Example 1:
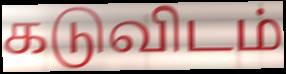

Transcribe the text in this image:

கடுவிடம்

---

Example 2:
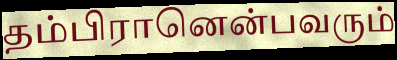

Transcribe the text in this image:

தம்பிரானென்பவரும்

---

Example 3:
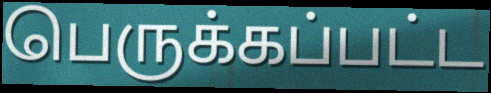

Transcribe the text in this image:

பெருக்கப்பட்ட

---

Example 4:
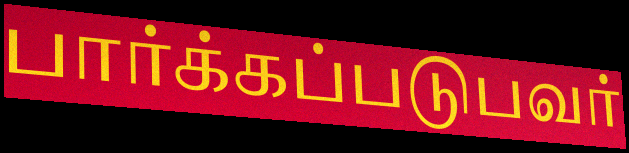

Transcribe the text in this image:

பார்க்கப்படுபவர்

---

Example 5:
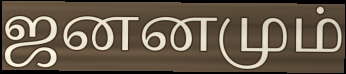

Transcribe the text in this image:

ஜனனமும்